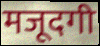
मजूदगी